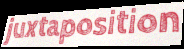
juxtaposition